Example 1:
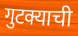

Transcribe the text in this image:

गुटक्याची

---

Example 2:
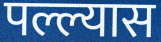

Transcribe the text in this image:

पल्ल्यास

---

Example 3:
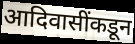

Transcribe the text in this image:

आदिवासींकडून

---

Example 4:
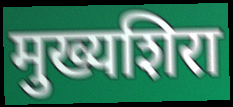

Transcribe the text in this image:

मुख्यशिरा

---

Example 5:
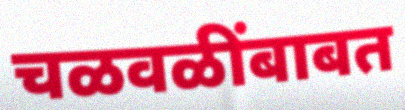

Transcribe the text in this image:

चळवळींबाबत